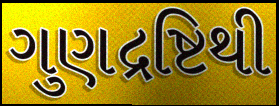
ગુણદ્રષ્ટિથી